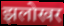
झलोखर